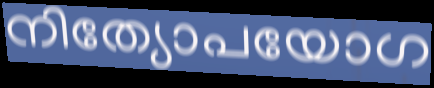
നിത്യോപയോഗ